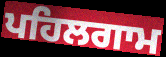
ਪਹਿਲਗਾਮ